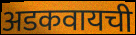
अडकवायची